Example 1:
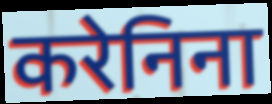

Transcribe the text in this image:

करेनिना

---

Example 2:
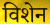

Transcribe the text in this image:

विशेन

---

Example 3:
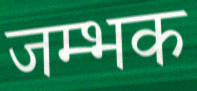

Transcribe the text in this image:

जम्भक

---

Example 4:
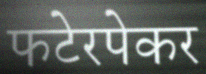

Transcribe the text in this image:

फटेरपेकर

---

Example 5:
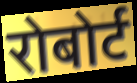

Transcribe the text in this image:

रोबोर्ट